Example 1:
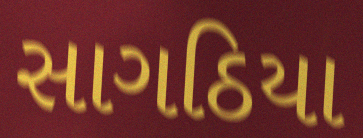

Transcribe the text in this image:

સાગઠિયા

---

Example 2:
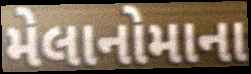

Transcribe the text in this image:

મેલાનોમાના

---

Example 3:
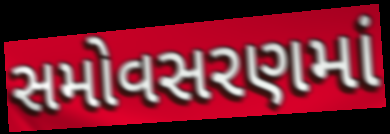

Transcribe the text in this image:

સમોવસરણમાં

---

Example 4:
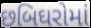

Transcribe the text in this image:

છબિઘરોમાં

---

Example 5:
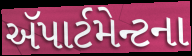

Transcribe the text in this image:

ઍપાર્ટમેન્ટના